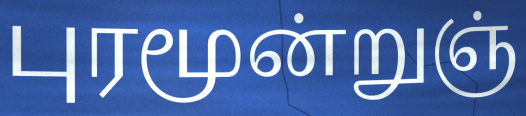
புரமூன்றுஞ்